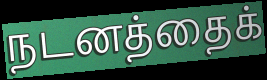
நடனத்தைக்